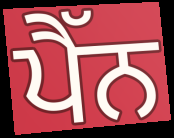
ਪੈੱਨ